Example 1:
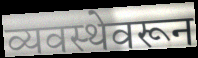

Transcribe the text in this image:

व्यवस्थेवरून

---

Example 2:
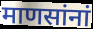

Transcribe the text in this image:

माणसांनां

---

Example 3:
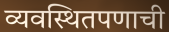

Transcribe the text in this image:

व्यवस्थितपणाची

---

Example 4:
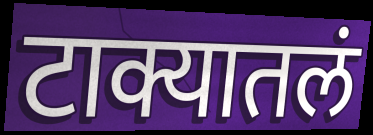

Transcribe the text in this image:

टाक्यातलं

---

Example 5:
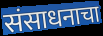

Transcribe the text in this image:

संसाधनाचा